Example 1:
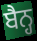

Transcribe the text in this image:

ਬੈਨ੍ਹ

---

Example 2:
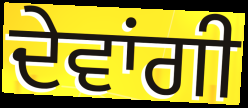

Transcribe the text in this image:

ਦੇਵਾਂਗੀ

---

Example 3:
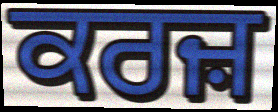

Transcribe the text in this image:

ਕਰਜ਼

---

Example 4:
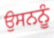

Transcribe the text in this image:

ਉਸਨਨੂੰ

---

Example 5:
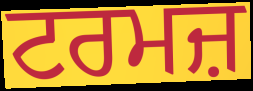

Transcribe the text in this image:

ਟਰਮਜ਼